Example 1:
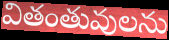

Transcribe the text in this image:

వితంతువులను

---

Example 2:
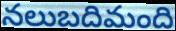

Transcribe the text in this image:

నలుబదిమంది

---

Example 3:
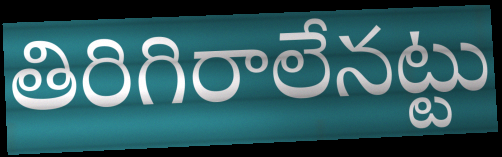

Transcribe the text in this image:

తిరిగిరాలేనట్టు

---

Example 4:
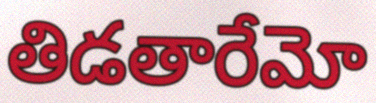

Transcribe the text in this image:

తిడతారేమో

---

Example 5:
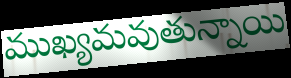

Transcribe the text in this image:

ముఖ్యమవుతున్నాయి